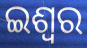
ଇଶ୍ଵର